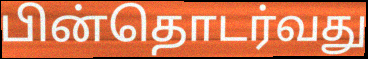
பின்தொடர்வது